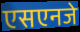
एसएनजे